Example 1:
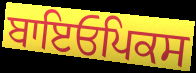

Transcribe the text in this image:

ਬਾਇਓਪਿਕਸ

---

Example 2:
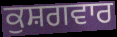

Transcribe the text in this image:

ਕੁਸ਼ਗਵਾਰ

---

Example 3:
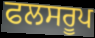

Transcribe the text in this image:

ਫਲਸਰੂਪ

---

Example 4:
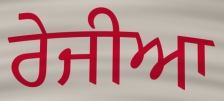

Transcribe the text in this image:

ਰੇਜੀਆ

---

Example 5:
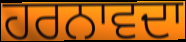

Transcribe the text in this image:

ਹਰਨਾਵਦਾ